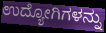
ಉದ್ಯೋಗಿಗಳನ್ನು